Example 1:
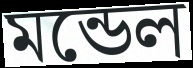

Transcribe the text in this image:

মন্ডেল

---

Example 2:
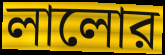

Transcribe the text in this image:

লালোর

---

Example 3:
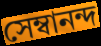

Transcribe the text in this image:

সেম্বানন্দ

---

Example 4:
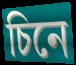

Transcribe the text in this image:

চিনে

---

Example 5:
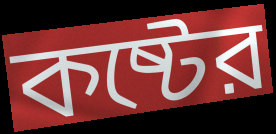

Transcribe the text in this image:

কষ্টের